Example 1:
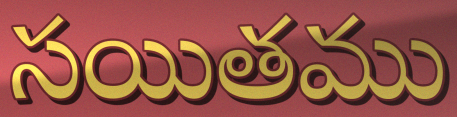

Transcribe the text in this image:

సయితము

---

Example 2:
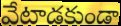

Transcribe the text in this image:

వేటాడకుండా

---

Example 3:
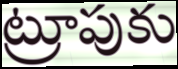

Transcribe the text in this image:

ట్రూపుకు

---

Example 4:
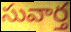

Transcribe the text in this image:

సువార్త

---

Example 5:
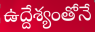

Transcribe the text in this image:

ఉద్దేశ్యంతోనే